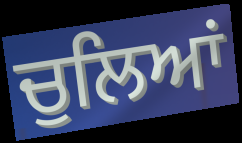
ਚੁਲਿਆਂ